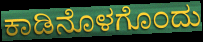
ಕಾಡಿನೊಳಗೊಂದು